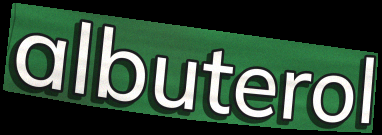
albuterol